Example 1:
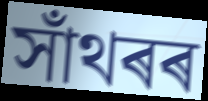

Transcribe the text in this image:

সাঁথৰৰ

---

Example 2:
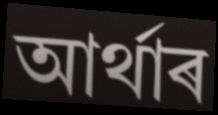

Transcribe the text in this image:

আৰ্থাৰ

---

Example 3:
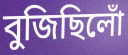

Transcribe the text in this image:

বুজিছিলোঁ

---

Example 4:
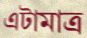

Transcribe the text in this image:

এটামাত্ৰ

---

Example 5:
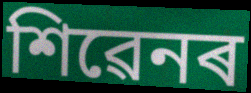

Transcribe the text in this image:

শিৱেনৰ